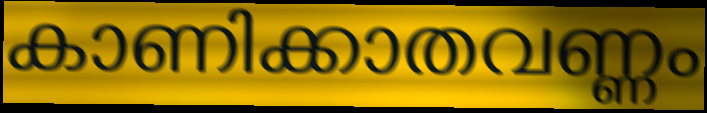
കാണിക്കാതവണ്ണം